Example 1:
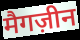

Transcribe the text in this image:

मैगज़ीन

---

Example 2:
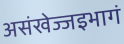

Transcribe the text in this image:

असंखेज्जइभागं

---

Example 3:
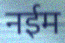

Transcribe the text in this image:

नईम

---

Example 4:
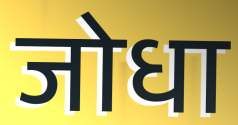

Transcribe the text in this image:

जोधा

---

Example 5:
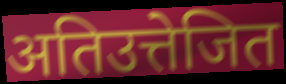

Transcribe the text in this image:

अतिउत्तेजित